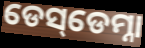
ଡେସ୍‌ଡେମ୍ନା